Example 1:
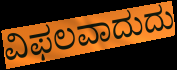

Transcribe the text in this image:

ವಿಫಲವಾದುದು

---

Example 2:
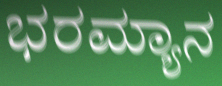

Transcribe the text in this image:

ಭರಮ್ಯಾನ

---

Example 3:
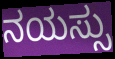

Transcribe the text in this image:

ನಯಸ್ಸು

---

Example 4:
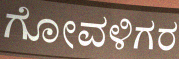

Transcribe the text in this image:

ಗೋವಳಿಗರ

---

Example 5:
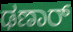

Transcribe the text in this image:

ಢಣಾರ್